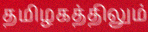
தமிழகத்திலும்